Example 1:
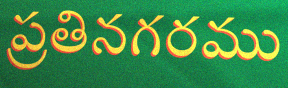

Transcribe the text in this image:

ప్రతినగరము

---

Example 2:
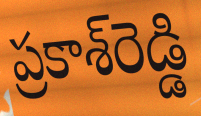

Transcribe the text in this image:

ప్రకాశ్‌రెడ్డి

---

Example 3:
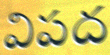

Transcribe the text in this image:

విపద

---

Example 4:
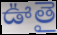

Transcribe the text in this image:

ఊతై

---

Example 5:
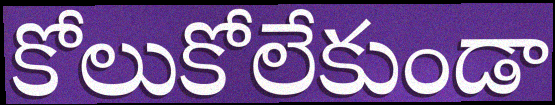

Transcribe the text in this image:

కోలుకోలేకుండా